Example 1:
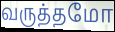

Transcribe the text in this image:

வருத்தமோ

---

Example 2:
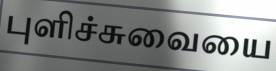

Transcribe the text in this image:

புளிச்சுவையை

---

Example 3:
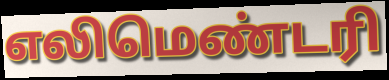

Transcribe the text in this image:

எலிமெண்டரி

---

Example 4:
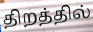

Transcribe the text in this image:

திறத்தில்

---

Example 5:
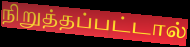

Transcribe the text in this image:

நிறுத்தப்பட்டால்